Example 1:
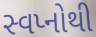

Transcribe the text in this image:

સ્વપ્નોથી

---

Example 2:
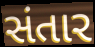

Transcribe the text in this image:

સંતાર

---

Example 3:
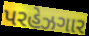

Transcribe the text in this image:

પરહેઝગાર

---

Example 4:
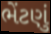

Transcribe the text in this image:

ભેંટણું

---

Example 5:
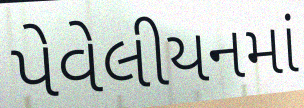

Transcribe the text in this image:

પેવેલીયનમાં